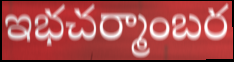
ఇభచర్మాంబర